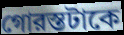
গোরস্তটাকে